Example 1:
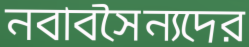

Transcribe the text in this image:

নবাবসৈন্যদের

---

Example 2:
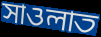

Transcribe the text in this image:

সাওলাত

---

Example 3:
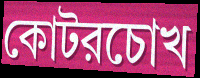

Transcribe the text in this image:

কোটরচোখ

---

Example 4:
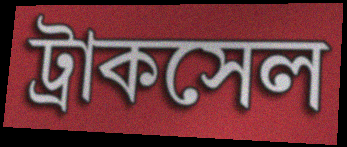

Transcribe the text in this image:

ট্রাকসেল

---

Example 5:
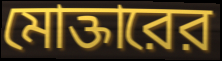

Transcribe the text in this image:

মোক্তারের